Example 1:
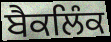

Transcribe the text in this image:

ਬੈਕਲਿੰਕ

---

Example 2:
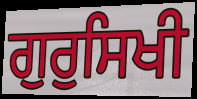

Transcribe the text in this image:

ਗੁਰੁਸਿਖੀ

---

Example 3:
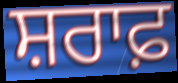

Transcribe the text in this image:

ਸ਼ਰਾਫ਼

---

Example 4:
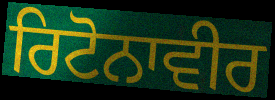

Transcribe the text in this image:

ਰਿਟੋਨਾਵੀਰ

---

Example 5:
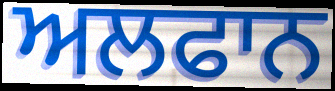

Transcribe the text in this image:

ਅਲਫਾਨ